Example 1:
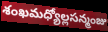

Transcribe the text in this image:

శంఖమధ్యోల్లసన్మంజు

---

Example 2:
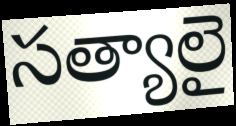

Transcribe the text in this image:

సత్యాలై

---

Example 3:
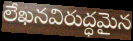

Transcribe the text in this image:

లేఖనవిరుద్ధమైన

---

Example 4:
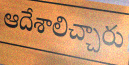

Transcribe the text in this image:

ఆదేశాలిచ్చారు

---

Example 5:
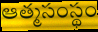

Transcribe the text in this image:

ఆత్మసంస్థం